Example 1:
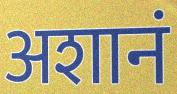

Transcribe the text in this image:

अशानं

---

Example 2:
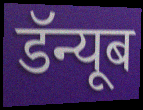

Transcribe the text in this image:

डॅन्यूब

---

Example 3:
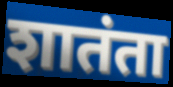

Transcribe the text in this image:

शातंता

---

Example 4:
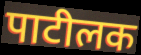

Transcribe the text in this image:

पाटीलक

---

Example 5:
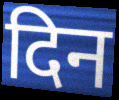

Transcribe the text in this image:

दिन